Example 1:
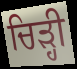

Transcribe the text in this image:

ਚਿੜ੍ਹੀ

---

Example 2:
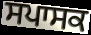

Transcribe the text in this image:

ਸਪਾਸਕ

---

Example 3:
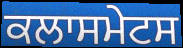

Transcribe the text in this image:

ਕਲਾਸਮੇਟਸ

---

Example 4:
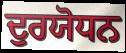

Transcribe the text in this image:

ਦੁਰਯੋਧਨ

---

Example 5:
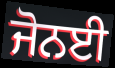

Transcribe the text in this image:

ਜੋਨਈ